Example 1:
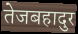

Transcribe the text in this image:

तेजबहादुर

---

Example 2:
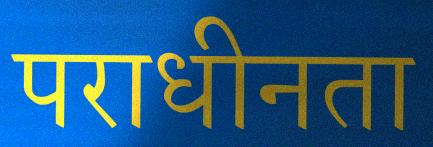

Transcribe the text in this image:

पराधीनता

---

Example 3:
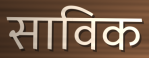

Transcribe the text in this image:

साविक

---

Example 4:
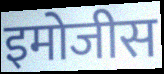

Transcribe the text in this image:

इमोजीस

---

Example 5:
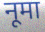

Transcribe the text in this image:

नूमा